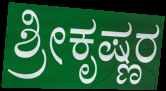
ಶ್ರೀಕೃಷ್ಣರ